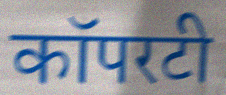
कॉपरटी